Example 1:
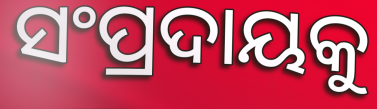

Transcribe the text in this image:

ସଂପ୍ରଦାୟକୁ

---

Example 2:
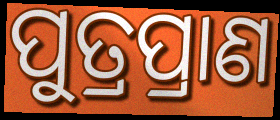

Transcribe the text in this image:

ପୁତ୍ରପ୍ରାଣ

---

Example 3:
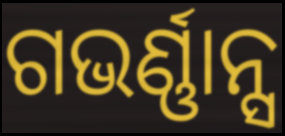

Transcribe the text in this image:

ଗଭର୍ଣ୍ଣାନ୍ସ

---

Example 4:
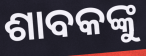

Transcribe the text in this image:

ଶାବକଙ୍କୁ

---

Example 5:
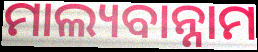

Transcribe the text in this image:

ମାଲ୍ୟବାନ୍ନାମ